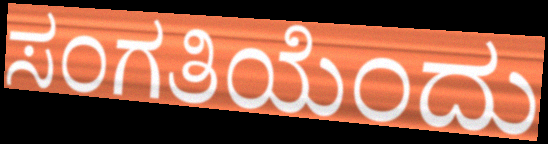
ಸಂಗತಿಯೆಂದು